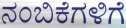
ನಂಬಿಕೆಗಳಿಗೆ